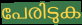
പേരിടുക